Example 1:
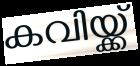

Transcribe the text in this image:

കവിയ്ക്ക്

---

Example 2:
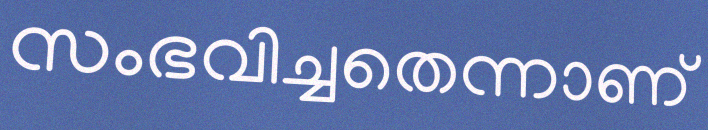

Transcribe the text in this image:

സംഭവിച്ചതെന്നാണ്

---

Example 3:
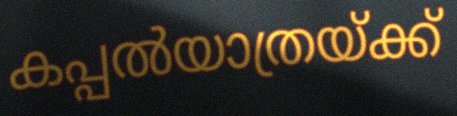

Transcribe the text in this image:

കപ്പൽയാത്രയ്ക്ക്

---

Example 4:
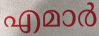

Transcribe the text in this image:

എമാർ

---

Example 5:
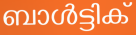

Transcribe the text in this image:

ബാൾട്ടിക്